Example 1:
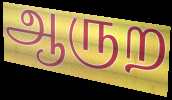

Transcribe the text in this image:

ஆருற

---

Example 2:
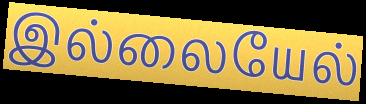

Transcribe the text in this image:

இல்லையேல்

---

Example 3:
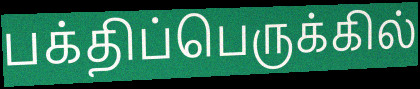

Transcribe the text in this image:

பக்திப்பெருக்கில்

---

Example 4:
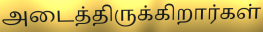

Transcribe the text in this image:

அடைத்திருக்கிறார்கள்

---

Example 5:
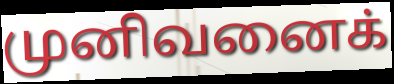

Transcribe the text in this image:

முனிவனைக்